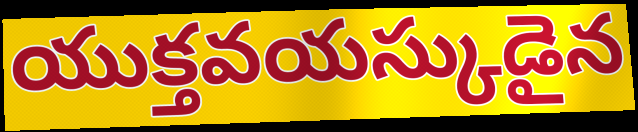
యుక్తవయస్కుడైన